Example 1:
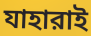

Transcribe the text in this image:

যাহারাই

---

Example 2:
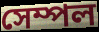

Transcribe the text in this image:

সেম্পল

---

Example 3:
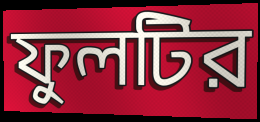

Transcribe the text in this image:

ফুলটির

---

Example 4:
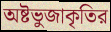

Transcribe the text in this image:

অষ্টভুজাকৃতির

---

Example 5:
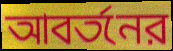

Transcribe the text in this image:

আবর্তনের